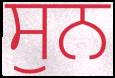
ਸੁਨ